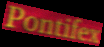
Pontifex